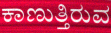
ಕಾಣುತ್ತಿರುವ